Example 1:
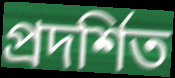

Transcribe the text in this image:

প্রদর্শিত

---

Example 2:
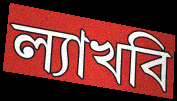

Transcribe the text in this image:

ল্যাখবি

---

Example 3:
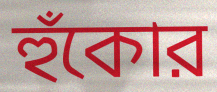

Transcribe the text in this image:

হুঁকোর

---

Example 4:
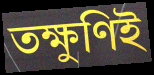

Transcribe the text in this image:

তক্ষুণিই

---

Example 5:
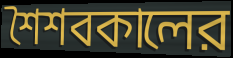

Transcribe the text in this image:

শৈশবকালের